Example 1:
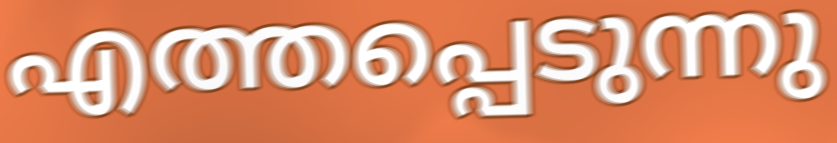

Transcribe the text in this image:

എത്തപ്പെടുന്നു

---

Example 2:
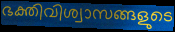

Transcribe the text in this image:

ഭക്തിവിശ്വാസങ്ങളുടെ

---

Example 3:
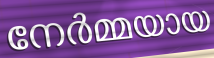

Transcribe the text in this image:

നേർമ്മയായ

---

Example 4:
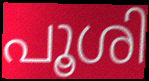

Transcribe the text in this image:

പൂശി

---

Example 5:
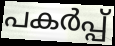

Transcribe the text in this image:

പകർപ്പ്